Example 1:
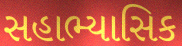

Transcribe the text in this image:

સહાભ્યાસિક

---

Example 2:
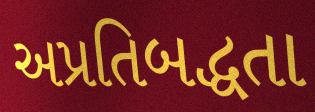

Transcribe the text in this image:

અપ્રતિબદ્ધતા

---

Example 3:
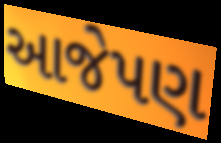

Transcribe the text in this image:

આજેપણ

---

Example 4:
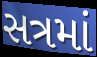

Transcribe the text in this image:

સત્રમાં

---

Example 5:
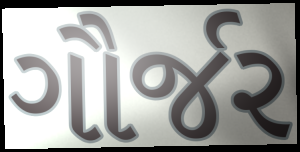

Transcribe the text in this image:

ગૌર્જર